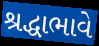
શ્રદ્ધાભાવે